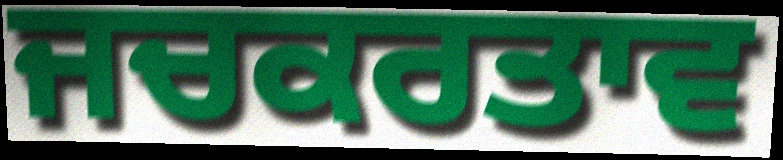
ਜਚਕਰਤਾਵ